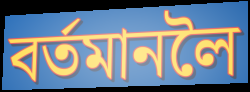
বৰ্তমানলৈ